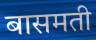
बासमती